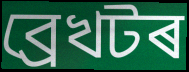
ব্ৰেখটৰ